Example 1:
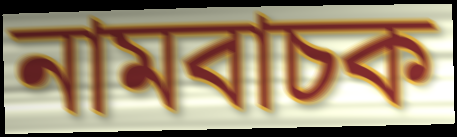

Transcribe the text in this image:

নামবাচক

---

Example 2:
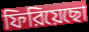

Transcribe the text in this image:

ফিরিয়েছো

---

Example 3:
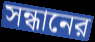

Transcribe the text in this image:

সন্ধানের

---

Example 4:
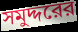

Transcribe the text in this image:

সমুদ্দরের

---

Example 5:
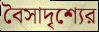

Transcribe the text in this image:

বৈসাদৃশ্যের